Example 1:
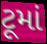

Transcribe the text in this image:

ટૂમાં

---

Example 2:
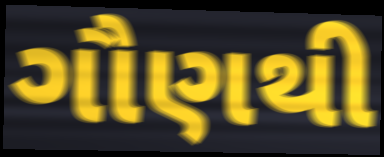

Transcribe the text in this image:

ગૌણથી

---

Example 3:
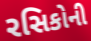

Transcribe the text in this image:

રસિકોની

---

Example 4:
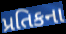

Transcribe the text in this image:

પ્રતિકના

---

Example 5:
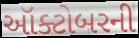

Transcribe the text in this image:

ઑક્ટોબરની